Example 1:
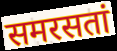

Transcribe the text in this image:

समरसतां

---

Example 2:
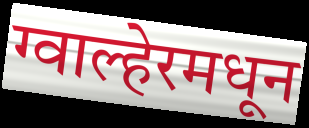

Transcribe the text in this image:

ग्वाल्हेरमधून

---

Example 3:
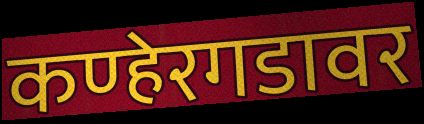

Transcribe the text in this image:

कण्हेरगडावर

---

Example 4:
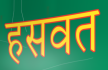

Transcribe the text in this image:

हसवत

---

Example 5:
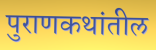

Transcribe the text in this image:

पुराणकथांतील